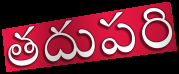
తదుపరి